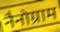
नैनोग्राम